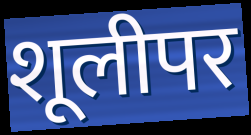
शूलीपर